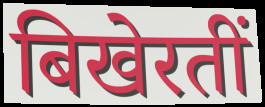
बिखेरतीं